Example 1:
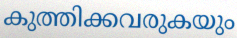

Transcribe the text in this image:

കുത്തിക്കവരുകയും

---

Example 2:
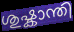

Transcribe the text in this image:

ശുഷ്കാന്തി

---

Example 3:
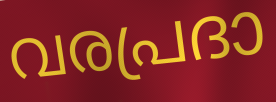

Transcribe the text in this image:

വരപ്രദാ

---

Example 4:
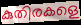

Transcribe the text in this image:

കുതിരകളെ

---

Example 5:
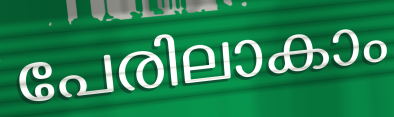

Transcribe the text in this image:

പേരിലാകാം